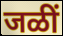
जळीं